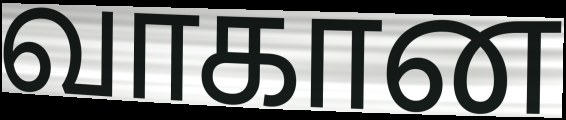
வாகான